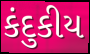
કંદુકીય